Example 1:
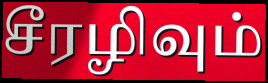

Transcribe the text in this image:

சீரழிவும்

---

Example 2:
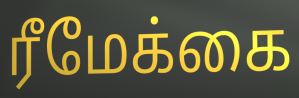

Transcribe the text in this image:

ரீமேக்கை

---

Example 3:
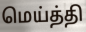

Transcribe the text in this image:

மெய்த்தி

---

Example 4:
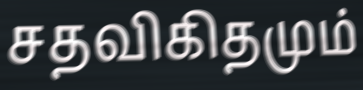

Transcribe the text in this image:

சதவிகிதமும்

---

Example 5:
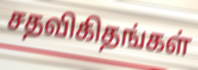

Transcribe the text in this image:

சதவிகிதங்கள்